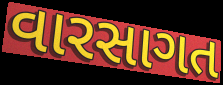
વારસાગત